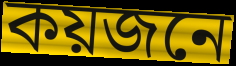
কয়জনে